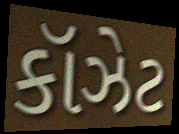
કૉઝેટ